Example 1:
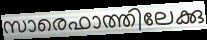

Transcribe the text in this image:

സാരെഫാത്തിലേക്കു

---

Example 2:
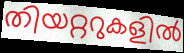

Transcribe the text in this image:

തിയറ്ററുകളിൽ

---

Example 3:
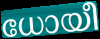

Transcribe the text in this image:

ധോയീ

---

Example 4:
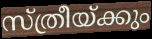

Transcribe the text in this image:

സ്ത്രീയ്ക്കും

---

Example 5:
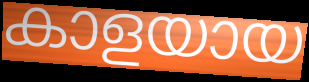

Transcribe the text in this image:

കാളയായ